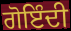
ਗੋਇੰਦੀ